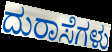
ದುರಾಸೆಗಳು